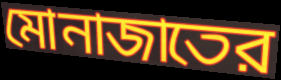
মোনাজাতের